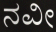
ನವೀ